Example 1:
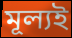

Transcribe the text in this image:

মূল্যই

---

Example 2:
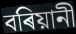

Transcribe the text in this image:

বৰিয়ানী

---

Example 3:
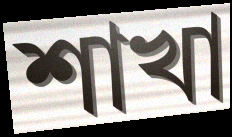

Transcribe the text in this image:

শাখা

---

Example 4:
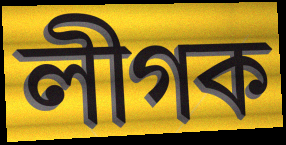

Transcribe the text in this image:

লীগক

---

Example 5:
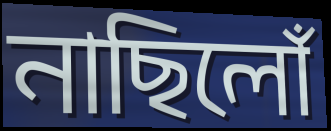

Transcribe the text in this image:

নাছিলোঁ